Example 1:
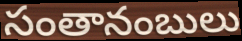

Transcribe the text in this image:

సంతానంబులు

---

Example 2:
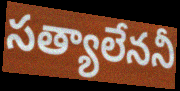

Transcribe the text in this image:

సత్యాలేననీ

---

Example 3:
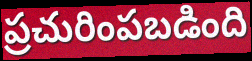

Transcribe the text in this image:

ప్రచురింపబడింది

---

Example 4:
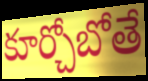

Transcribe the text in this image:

కూర్చోబోతే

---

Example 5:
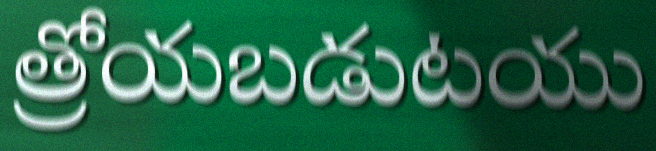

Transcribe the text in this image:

త్రోయబడుటయు